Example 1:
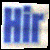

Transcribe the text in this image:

Hir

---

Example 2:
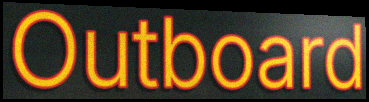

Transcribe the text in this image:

Outboard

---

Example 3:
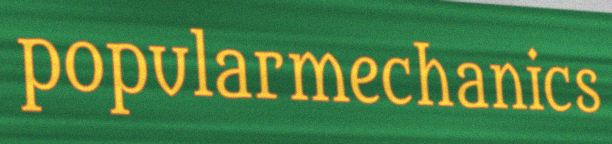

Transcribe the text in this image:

popularmechanics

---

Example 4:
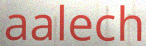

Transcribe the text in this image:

aalech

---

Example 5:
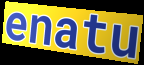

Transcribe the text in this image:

enatu